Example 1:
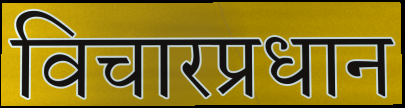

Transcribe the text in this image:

विचारप्रधान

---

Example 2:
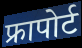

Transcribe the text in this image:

फ्रापोर्ट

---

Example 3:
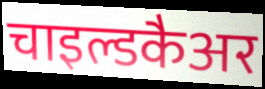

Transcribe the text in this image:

चाइल्डकैअर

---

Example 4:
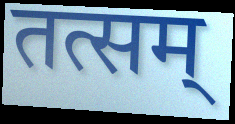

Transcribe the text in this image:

तत्सम्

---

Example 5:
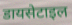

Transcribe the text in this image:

डायसेटाइल